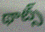
థాట్స్